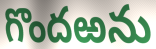
గొందఱను